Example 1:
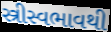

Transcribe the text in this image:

સ્ત્રીસ્વભાવથી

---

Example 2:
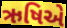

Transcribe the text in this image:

ઋષિએ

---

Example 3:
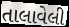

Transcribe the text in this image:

તાલાવેલી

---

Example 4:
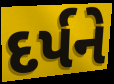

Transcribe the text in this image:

દર્પને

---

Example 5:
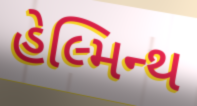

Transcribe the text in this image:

હેલ્મિન્થ